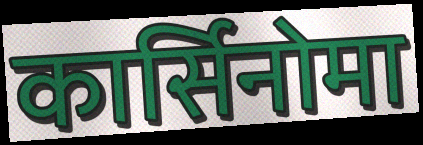
कार्सिनोमा